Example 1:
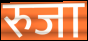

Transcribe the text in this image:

रुजा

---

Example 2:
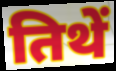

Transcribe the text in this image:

तिथें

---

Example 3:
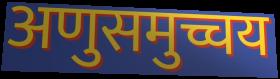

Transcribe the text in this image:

अणुसमुच्चय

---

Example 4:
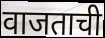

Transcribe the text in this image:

वाजताची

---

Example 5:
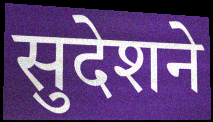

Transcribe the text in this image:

सुदेशने